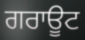
ਗਰਾਊਟ